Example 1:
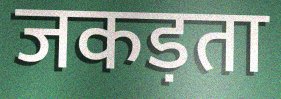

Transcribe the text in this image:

जकड़ता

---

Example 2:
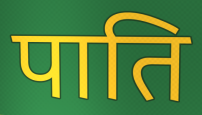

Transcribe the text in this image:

पाति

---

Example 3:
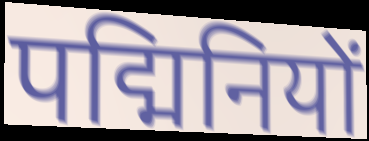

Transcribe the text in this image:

पद्मिनियों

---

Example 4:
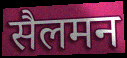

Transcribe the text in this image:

सैलमन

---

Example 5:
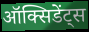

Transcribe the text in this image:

ऑक्सिडेंट्स